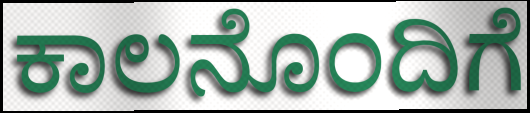
ಕಾಲನೊಂದಿಗೆ